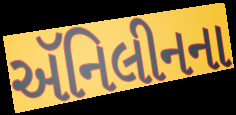
ઍનિલીનના